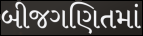
બીજગણિતમાં